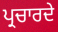
ਪ੍ਰਚਾਰਦੇ